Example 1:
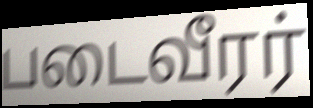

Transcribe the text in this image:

படைவீரர்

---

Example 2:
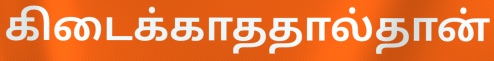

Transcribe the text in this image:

கிடைக்காததால்தான்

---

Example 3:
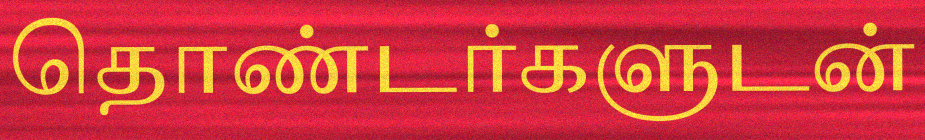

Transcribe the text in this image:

தொண்டர்களுடன்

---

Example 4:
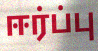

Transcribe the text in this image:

ஈர்ப்பு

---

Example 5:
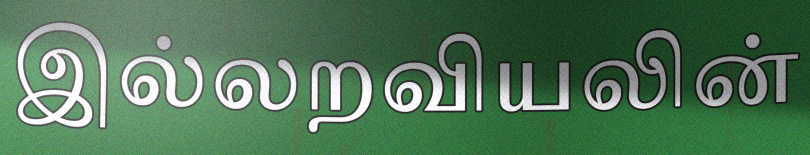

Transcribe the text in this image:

இல்லறவியலின்